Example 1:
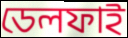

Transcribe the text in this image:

ডেলফাই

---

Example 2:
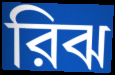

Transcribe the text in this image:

রিঝ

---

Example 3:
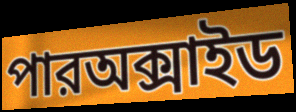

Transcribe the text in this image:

পারঅক্সাইড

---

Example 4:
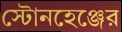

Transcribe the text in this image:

স্টোনহেঞ্জের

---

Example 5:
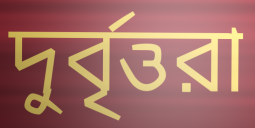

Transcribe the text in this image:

দুর্বৃত্তরা